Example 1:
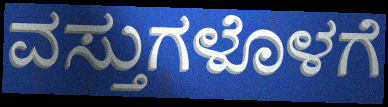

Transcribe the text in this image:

ವಸ್ತುಗಳೊಳಗೆ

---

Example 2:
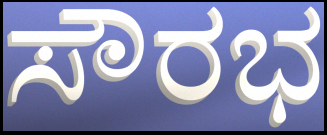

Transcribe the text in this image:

ಸೌರಭ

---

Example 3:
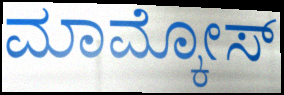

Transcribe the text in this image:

ಮಾಮ್ಕೋಸ್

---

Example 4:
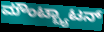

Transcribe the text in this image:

ಮೌಂಟ್ಬ್ಯಾಟನ್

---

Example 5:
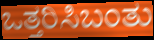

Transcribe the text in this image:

ಒತ್ತರಿಸಿಬಂತು